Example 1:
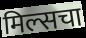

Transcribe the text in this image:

मिल्सचा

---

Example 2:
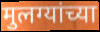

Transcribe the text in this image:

मुलग्यांच्या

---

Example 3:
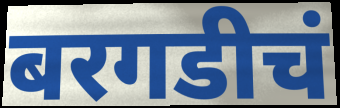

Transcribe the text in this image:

बरगडीचं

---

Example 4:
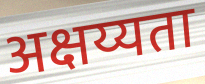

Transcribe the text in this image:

अक्षय्यता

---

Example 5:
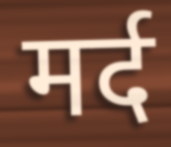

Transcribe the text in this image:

मर्द